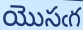
యొసఁగ